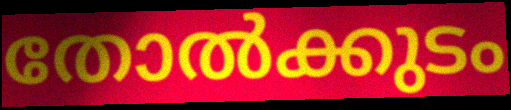
തോൽക്കുടം